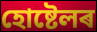
হোষ্টেলৰ